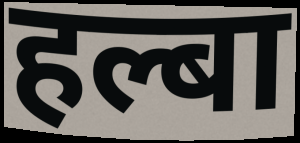
हल्बा